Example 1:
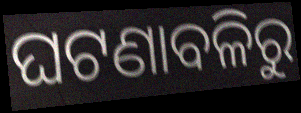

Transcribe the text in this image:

ଘଟଣାବଳିରୁ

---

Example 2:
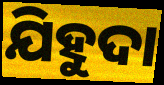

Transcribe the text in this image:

ଯିହୁଦା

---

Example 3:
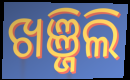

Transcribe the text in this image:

ଖଞ୍ଜିଲି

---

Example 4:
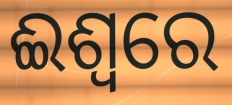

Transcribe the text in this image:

ଈଶ୍ଵରେ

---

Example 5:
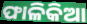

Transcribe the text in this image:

ଫାଳିକିଆ